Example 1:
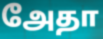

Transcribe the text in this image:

அேதா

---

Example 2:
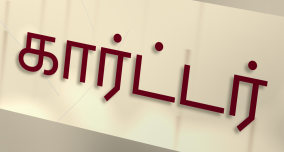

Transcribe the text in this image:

கார்ட்டர்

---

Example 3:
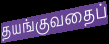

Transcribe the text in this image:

தயங்குவதைப்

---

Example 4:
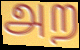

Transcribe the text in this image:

அற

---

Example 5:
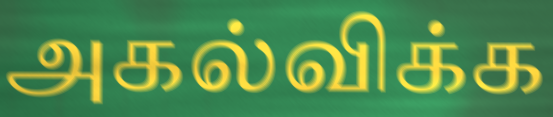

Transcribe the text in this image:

அகல்விக்க